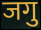
जगु